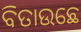
ବିତାଉଛେ